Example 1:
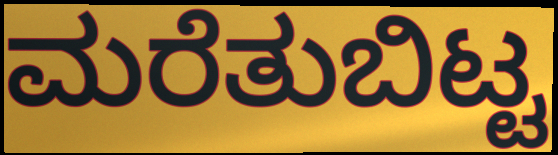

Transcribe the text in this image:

ಮರೆತುಬಿಟ್ಟ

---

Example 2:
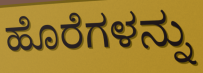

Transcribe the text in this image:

ಹೊರೆಗಳನ್ನು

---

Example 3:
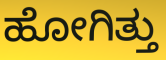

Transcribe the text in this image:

ಹೋಗಿತ್ತು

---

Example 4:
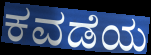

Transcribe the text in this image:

ಕವಡೆಯ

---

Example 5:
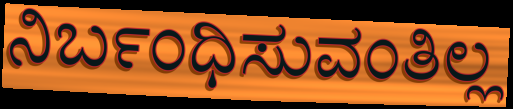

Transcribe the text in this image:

ನಿರ್ಬಂಧಿಸುವಂತಿಲ್ಲ